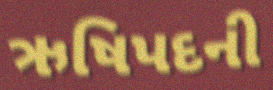
ઋષિપદની